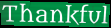
Thankful